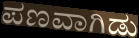
ಪಣವಾಗಿಡು